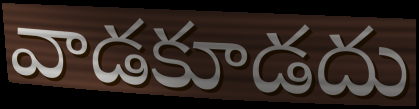
వాడకూడదు